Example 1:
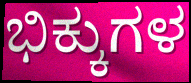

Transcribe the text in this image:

ಭಿಕ್ಕುಗಳ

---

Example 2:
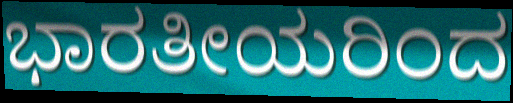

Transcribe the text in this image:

ಭಾರತೀಯರಿಂದ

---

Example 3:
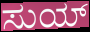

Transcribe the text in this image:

ಸುಯ್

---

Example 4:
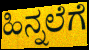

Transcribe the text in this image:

ಹಿನ್ನಲೆಗೆ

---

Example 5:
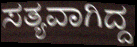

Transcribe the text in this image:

ಸತ್ಯವಾಗಿದ್ದ